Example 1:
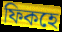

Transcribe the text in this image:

ফিকহে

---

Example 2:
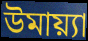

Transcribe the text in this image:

উমায়্যা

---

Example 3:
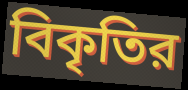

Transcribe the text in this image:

বিকৃতির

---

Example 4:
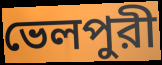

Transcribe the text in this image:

ভেলপুরী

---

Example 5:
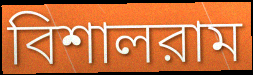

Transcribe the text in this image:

বিশালরাম